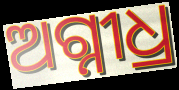
ଅଗ୍ନୀଧ୍ର